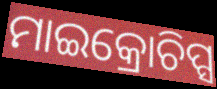
ମାଇକ୍ରୋଚିପ୍ସ